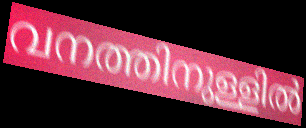
വനത്തിനുള്ളിൽ